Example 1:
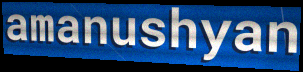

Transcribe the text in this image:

amanushyan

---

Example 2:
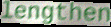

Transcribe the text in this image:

lengthen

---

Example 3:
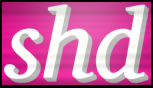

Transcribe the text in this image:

shd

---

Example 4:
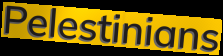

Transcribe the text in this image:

Pelestinians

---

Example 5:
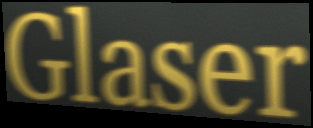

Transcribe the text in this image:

Glaser